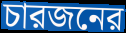
চারজনের